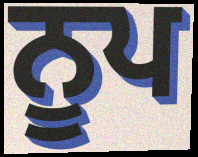
ਨੂਪ